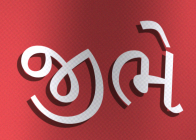
જીભે